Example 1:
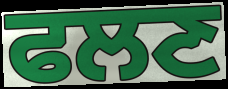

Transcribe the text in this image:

ਫਲਣ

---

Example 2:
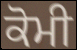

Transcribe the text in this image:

ਕੋਮੀ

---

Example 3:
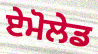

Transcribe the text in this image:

ਏਮੋਲੇਡ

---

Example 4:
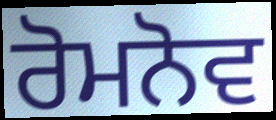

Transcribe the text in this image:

ਰੋਮਨੋਵ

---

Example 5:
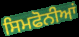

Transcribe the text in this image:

ਸਿਮਫੋਨੀਆਂ